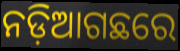
ନଡ଼ିଆଗଛରେ